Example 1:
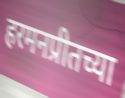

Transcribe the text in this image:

हरमनप्रीतच्या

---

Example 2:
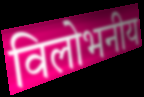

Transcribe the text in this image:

विलोभनीय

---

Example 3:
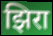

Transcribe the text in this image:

झिरा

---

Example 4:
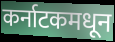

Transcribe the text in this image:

कर्नाटकमधून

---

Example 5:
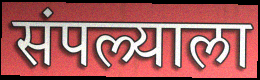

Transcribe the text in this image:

संपल्याला